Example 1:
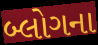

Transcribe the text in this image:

બ્લોગના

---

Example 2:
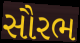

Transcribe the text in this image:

સૌરભ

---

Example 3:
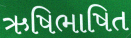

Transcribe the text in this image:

ઋષિભાષિત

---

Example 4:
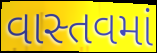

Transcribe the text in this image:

વાસ્તવમાં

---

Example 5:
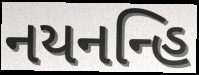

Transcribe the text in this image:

નયનન્હિ